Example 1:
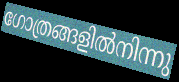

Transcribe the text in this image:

ഗോത്രങ്ങളിൽനിന്നു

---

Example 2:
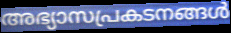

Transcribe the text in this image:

അഭ്യാസപ്രകടനങ്ങൾ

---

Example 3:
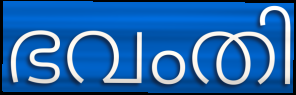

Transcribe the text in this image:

ഭവംതി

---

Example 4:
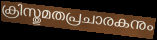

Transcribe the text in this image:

ക്രിസ്തുമതപ്രചാരകനും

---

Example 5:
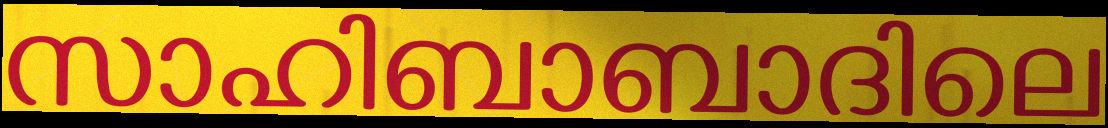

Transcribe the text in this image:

സാഹിബാബാദിലെ